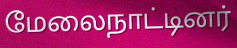
மேலைநாட்டினர்